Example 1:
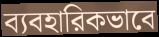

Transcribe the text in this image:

ব্যবহারিকভাবে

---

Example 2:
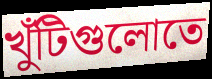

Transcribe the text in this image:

খুঁটিগুলোতে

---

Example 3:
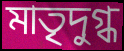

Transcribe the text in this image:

মাতৃদুগ্ধ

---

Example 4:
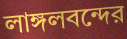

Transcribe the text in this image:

লাঙ্গলবন্দের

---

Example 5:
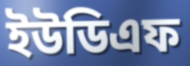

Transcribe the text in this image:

ইউডিএফ